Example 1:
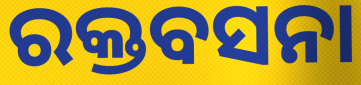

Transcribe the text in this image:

ରକ୍ତବସନା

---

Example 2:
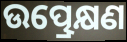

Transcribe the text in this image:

ଉତ୍ପ୍ରେକ୍ଷଣ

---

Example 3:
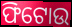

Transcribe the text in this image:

ଫିଟୋଉ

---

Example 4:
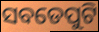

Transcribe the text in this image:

ସବଡେପୁଟି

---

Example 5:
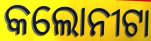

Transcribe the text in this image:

କଲୋନୀଟା